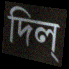
দিল্